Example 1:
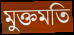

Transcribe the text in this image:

মুক্তমতি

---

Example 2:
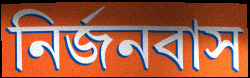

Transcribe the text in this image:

নির্জনবাস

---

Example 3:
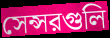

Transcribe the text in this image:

সেন্সরগুলি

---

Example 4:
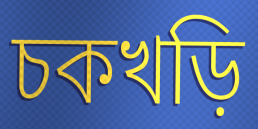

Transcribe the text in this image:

চকখড়ি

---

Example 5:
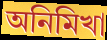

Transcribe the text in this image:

অনিমিখা